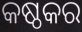
କଷ୍ଠକର